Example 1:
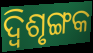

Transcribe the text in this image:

ଦ୍ଵିଶୃଙ୍ଗକ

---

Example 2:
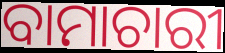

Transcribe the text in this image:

ବାମାଚାରୀ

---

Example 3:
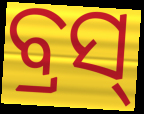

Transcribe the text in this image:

ବ୍ରସ୍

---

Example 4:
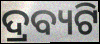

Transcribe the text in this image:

ଦ୍ରବ୍ୟଟି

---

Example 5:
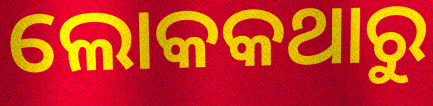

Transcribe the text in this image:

ଲୋକକଥାରୁ